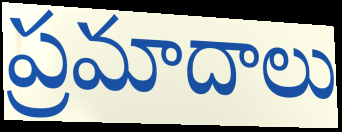
ప్రమాదాలు